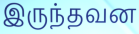
இருந்தவன